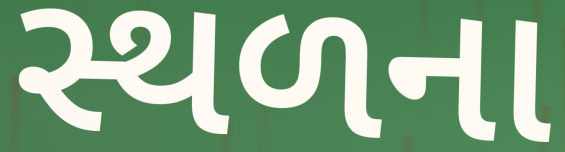
સ્થળના